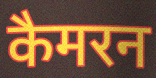
कैमरन